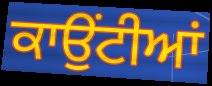
ਕਾਉਂਟੀਆਂ